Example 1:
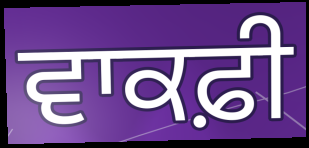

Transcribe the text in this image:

ਵਾਕਫ਼ੀ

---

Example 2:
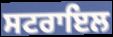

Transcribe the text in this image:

ਸਟਰਾਇਲ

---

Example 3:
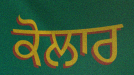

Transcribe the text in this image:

ਕੋਲਾਰ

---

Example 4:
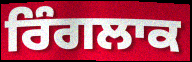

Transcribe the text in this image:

ਰਿੰਗਲਾਕ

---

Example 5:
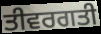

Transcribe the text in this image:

ਤੀਵਰਗਤੀ